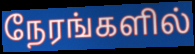
நேரங்களில்